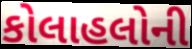
કોલાહલોની